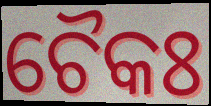
ଚୈକଃ